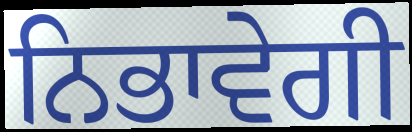
ਨਿਭਾਵੇਗੀ